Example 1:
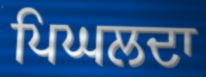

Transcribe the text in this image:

ਪਿਘਲਦਾ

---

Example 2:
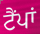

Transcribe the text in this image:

ਟੈਂਪਾਂ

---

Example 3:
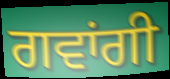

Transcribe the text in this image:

ਗਵਾਂਗੀ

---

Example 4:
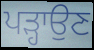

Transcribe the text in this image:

ਪੜ੍ਹਾਉਣ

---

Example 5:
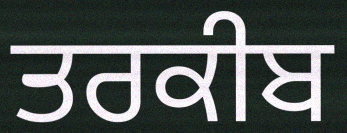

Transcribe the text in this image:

ਤਰਕੀਬ